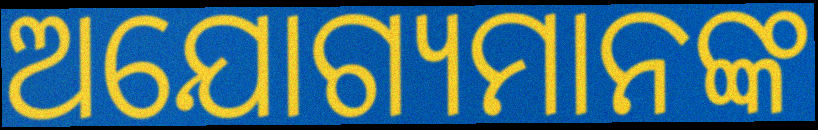
ଅଯୋଗ୍ୟମାନଙ୍କ